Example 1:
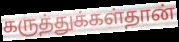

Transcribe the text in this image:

கருத்துக்கள்தான்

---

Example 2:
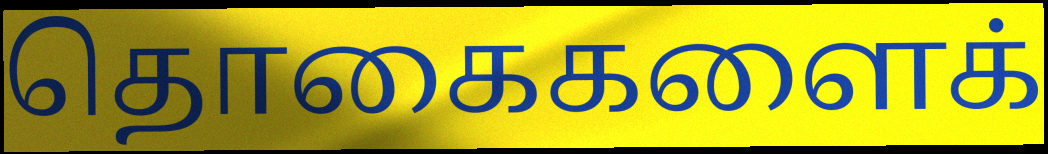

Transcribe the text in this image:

தொகைகளைக்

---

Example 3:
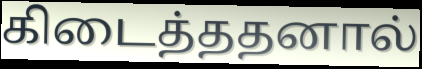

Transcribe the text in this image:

கிடைத்ததனால்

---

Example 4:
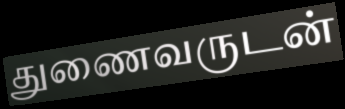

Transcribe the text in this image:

துணைவருடன்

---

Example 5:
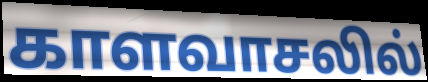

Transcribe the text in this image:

காளவாசலில்